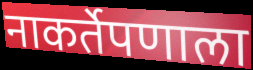
नाकर्तेपणाला